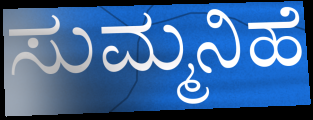
ಸುಮ್ಮನಿಹೆ